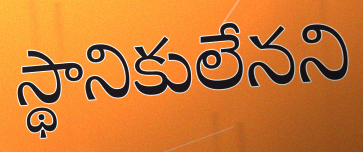
స్థానికులేనని